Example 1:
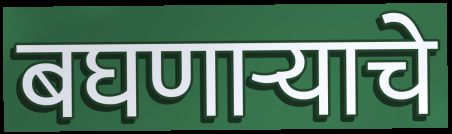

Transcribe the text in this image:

बघणाऱ्याचे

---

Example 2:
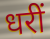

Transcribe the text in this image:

धरीं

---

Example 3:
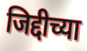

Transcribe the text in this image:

जिद्दीच्या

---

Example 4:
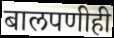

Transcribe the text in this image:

बालपणीही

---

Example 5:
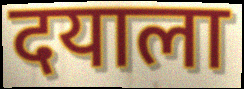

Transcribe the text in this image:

दयाला